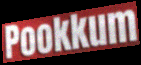
Pookkum